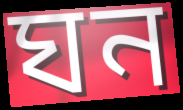
ঘন